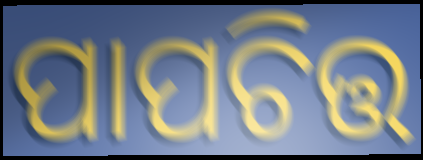
ପାପଚିତ୍ତ